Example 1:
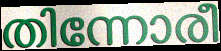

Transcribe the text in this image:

തിന്നോരീ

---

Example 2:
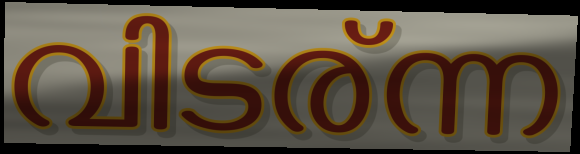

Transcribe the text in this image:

വിടര്ന്ന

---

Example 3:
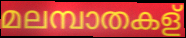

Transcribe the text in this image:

മലമ്പാതകള്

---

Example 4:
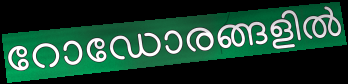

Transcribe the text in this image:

റോഡോരങ്ങളിൽ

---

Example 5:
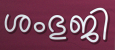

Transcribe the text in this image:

ശംഭുജി